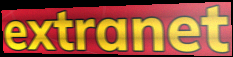
extranet